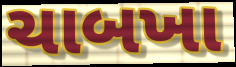
ચાબખા